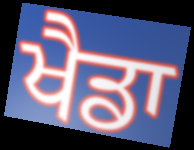
ਖੈਡਾ